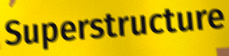
Superstructure